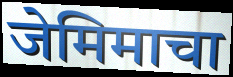
जेमिमाचा